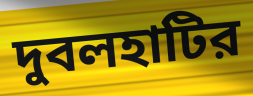
দুবলহাটির